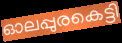
ഓലപ്പുരകെട്ടി